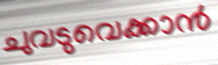
ചുവടുവെക്കാൻ